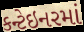
કન્ટેઇનરમાં